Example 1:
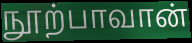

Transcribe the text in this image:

நூற்பாவான்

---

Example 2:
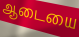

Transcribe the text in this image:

ஆடையை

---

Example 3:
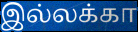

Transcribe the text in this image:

இல்லக்கா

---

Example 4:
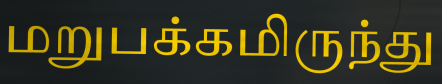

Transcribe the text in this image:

மறுபக்கமிருந்து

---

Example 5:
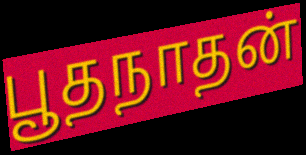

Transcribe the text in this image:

பூதநாதன்